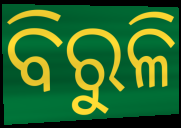
ବିରୁଳି